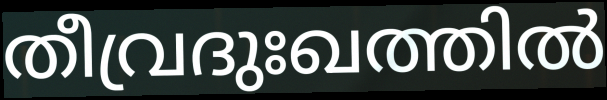
തീവ്രദുഃഖത്തിൽ